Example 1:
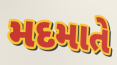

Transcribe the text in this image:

મદમાતે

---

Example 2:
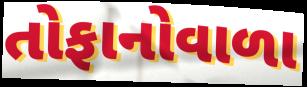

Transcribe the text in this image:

તોફાનોવાળા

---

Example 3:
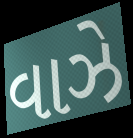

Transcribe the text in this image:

વાઝે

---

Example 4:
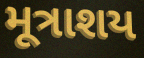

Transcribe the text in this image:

મૂત્રાશય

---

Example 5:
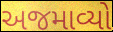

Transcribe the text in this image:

અજમાવ્યો